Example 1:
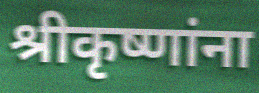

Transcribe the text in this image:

श्रीकृष्णांना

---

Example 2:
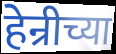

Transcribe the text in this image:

हेन्रीच्या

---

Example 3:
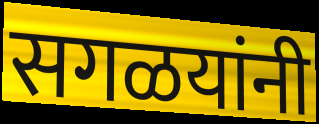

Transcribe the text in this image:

सगळयांनी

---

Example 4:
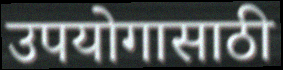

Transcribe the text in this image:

उपयोगासाठी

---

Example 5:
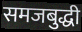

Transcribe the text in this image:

समजबुद्धी